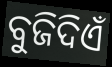
ବୁଜିଦିଏଁ